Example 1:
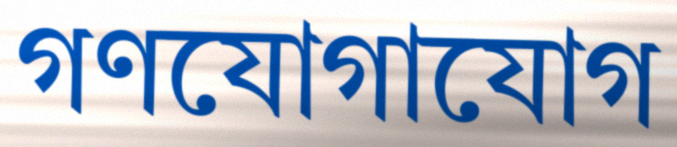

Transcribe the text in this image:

গণযোগাযোগ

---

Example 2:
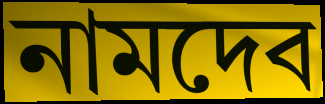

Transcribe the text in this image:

নামদেব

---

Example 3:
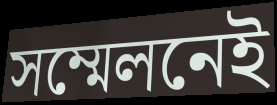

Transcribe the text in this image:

সম্মেলনেই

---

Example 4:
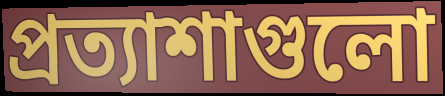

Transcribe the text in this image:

প্রত্যাশাগুলো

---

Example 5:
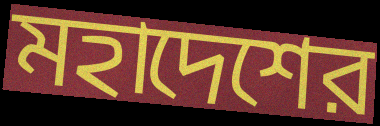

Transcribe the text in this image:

মহাদেশের